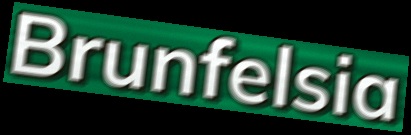
Brunfelsia